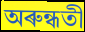
অৰুন্ধতী